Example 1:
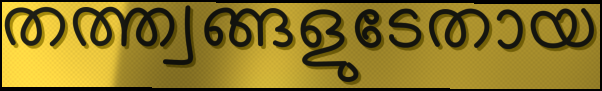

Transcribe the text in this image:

തത്ത്വങ്ങളുടേതായ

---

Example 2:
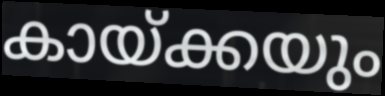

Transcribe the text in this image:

കായ്ക്കയും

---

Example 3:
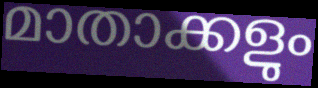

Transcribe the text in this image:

മാതാക്കളും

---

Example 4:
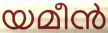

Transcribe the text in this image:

യമീൻ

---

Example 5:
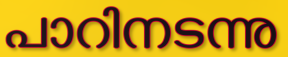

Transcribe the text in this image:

പാറിനടന്നു